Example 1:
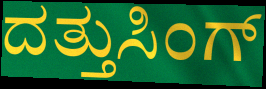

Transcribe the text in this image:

ದತ್ತುಸಿಂಗ್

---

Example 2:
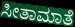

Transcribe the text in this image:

ಸೀತಾಮಾತೆ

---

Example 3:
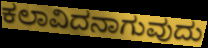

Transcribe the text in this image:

ಕಲಾವಿದನಾಗುವುದು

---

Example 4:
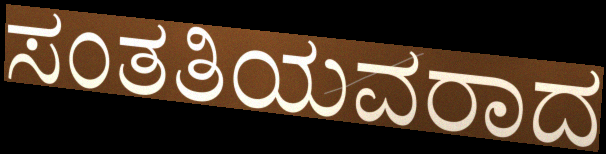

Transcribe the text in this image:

ಸಂತತಿಯವರಾದ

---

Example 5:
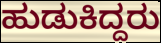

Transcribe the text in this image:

ಹುಡುಕಿದ್ದರು